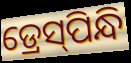
ଡ୍ରେସ୍‌ପିନ୍ଧି